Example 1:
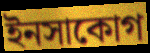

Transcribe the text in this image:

ইনসাকোগ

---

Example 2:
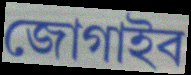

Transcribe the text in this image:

জোগাইব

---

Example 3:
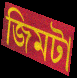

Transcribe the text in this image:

জিমটা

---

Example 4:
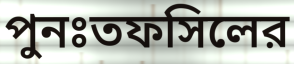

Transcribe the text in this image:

পুনঃতফসিলের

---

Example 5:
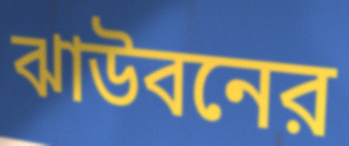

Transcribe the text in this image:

ঝাউবনের